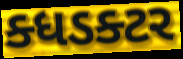
ક્ધડક્ટર